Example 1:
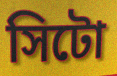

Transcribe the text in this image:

সিটো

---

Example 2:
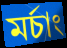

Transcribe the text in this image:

মৰ্চাং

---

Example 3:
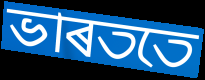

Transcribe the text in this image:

ভাৰততে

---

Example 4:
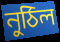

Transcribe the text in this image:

নুঠিল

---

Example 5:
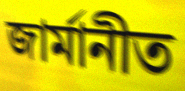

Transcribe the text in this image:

জাৰ্মানীত